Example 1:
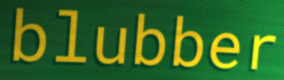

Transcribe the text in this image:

blubber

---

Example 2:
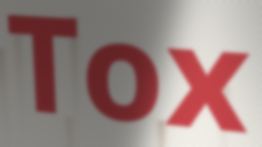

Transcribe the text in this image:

Tox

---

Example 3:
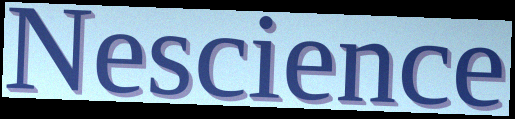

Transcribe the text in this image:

Nescience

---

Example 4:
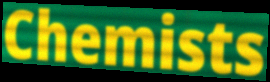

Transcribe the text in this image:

Chemists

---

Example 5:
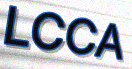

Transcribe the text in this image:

LCCA